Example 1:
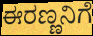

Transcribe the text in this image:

ಈರಣ್ಣನಿಗೆ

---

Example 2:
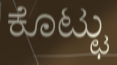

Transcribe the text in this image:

ಕೊಟ್ಟು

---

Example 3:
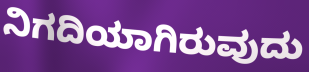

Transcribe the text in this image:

ನಿಗದಿಯಾಗಿರುವುದು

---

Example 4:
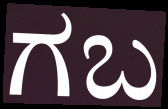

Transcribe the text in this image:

ಗಬ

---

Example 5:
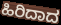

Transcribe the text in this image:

ಹಿರಿದಾದ